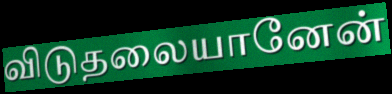
விடுதலையானேன்